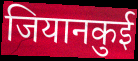
जियानकुई